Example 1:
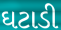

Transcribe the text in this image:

ઘટાડી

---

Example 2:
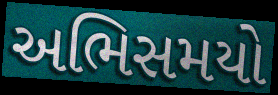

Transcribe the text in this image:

અભિસમયો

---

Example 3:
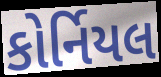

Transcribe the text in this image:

કોર્નિયલ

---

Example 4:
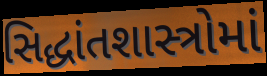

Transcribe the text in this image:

સિદ્ધાંતશાસ્ત્રોમાં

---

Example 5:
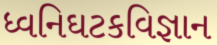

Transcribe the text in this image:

ધ્વનિઘટકવિજ્ઞાન